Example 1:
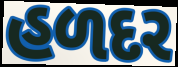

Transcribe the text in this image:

હળદર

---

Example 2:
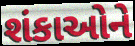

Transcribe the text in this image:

શંકાઓને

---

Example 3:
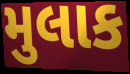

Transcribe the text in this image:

મુલાક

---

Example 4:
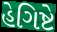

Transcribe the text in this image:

હેગિષ્ટે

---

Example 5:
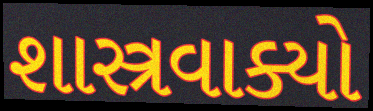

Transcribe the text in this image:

શાસ્ત્રવાક્યો